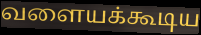
வளையக்கூடிய